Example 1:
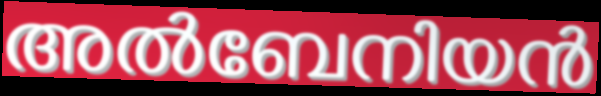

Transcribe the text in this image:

അൽബേനിയൻ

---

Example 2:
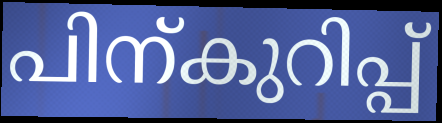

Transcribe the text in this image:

പിന്കുറിപ്പ്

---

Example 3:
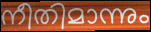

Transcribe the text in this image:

നീതിമാന്നും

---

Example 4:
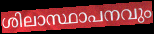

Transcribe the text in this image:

ശിലാസ്ഥാപനവും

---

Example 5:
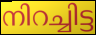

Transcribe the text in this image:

നിറച്ചിട്ട